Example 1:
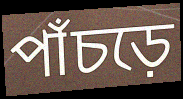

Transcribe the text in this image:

পাঁচড়ে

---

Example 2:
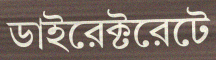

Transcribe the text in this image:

ডাইরেক্টরেটে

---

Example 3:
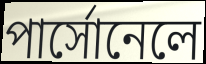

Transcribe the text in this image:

পার্সোনেলে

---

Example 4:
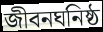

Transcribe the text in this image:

জীবনঘনিষ্ঠ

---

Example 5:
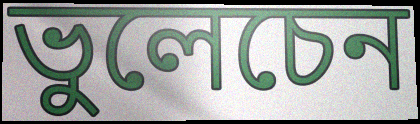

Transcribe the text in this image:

ভুলেচেন